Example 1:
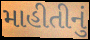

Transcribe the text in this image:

માહીતીનું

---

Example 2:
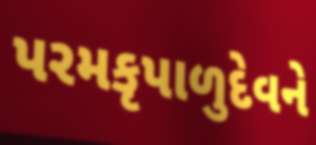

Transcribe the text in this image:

પરમકૃપાળુદેવને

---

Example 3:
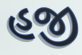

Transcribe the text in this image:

હજી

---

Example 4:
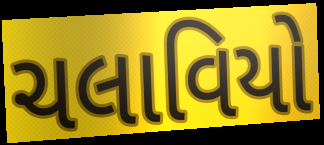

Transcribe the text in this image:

ચલાવિયો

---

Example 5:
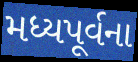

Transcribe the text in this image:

મધ્યપૂર્વના